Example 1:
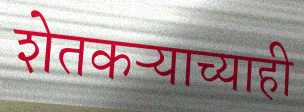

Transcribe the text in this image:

शेतकऱ्याच्याही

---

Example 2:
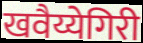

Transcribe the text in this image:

खवैय्येगिरी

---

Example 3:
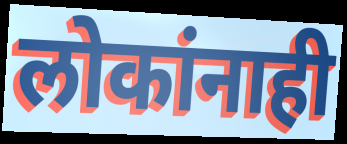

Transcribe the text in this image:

लोकांनाही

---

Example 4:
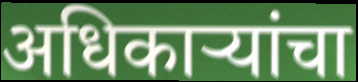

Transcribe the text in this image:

अधिकाऱ्यांचा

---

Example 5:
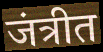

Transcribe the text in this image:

जंत्रीत